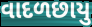
વાદળછાયુ